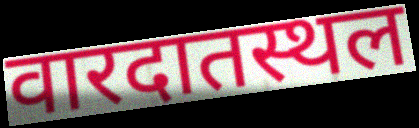
वारदातस्थल